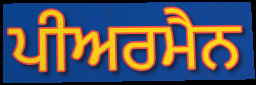
ਪੀਅਰਮੈਨ